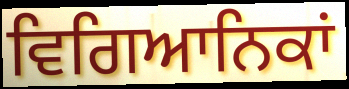
ਵਿਗਿਆਨਿਕਾਂ